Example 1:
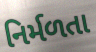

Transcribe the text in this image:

નિર્મળતા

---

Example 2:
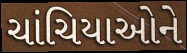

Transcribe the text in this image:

ચાંચિયાઓને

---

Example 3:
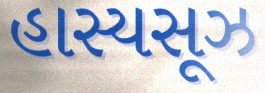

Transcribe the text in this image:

હાસ્યસૂઝ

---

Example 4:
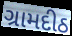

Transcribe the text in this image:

ગ્રામદીઠ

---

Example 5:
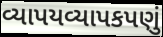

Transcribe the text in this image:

વ્યાપયવ્યાપકપણું